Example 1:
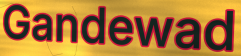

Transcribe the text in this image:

Gandewad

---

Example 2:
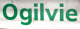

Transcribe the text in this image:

Ogilvie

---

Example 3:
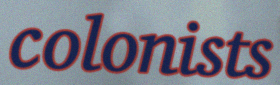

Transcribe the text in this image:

colonists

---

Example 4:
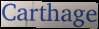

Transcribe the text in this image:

Carthage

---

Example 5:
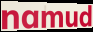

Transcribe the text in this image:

namud